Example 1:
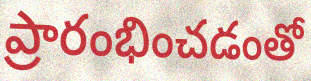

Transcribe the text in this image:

ప్రారంభించడంతో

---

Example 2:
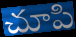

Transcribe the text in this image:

చూపి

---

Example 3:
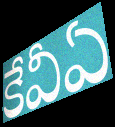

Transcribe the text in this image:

కేవీఏ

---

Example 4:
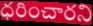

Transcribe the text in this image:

ధరించారని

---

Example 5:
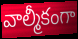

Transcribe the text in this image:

వాల్మీకంగా